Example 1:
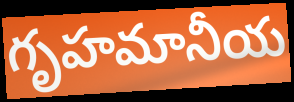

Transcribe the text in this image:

గృహమానీయ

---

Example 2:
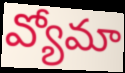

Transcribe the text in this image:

వ్యోమా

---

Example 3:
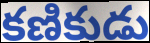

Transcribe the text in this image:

కణికుడు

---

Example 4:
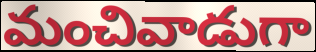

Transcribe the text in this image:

మంచివాడుగా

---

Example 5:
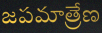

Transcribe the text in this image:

జపమాత్రేణ